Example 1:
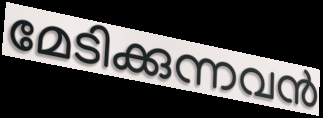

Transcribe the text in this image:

മേടിക്കുന്നവൻ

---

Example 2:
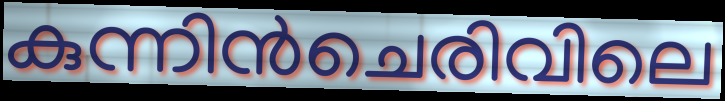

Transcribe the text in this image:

കുന്നിൻചെരിവിലെ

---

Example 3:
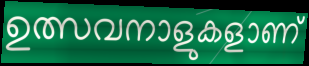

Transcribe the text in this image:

ഉത്സവനാളുകളാണ്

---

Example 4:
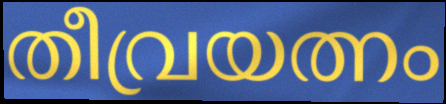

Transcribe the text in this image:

തീവ്രയത്നം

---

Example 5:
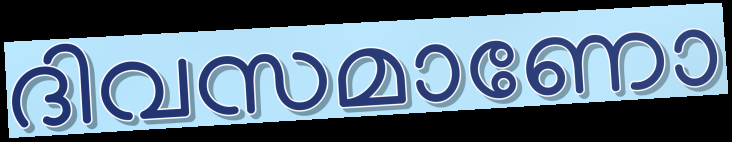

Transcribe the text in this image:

ദിവസമാണോ